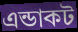
এন্ডাকট